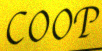
COOP